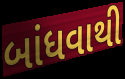
બાંધવાથી